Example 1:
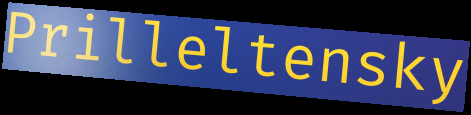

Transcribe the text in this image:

Prilleltensky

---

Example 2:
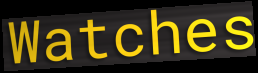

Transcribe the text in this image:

Watches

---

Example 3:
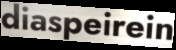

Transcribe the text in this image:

diaspeirein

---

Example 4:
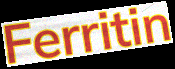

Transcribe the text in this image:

Ferritin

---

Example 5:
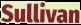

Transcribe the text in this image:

Sullivan